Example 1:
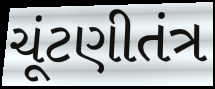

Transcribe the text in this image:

ચૂંટણીતંત્ર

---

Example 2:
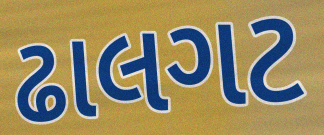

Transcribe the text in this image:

ઢાલગટ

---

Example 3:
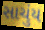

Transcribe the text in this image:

સાચુંય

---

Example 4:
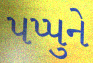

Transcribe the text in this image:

પપ્પુને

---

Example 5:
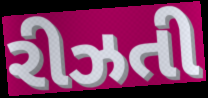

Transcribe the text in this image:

રીઝતી